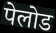
पेलोड